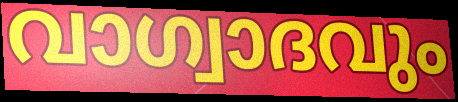
വാഗ്വാദവും